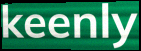
keenly